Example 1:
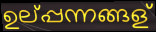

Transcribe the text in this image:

ഉല്പ്പന്നങ്ങള്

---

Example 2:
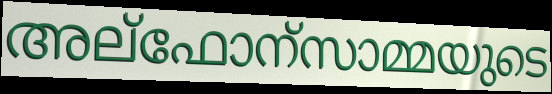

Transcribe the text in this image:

അല്ഫോന്സാമ്മയുടെ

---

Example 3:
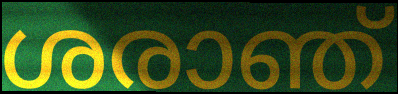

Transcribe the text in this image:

ശരാഞ്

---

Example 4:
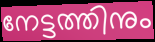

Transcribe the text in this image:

നേട്ടത്തിനും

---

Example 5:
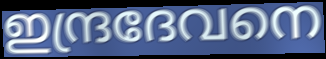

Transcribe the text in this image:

ഇന്ദ്രദേവനെ